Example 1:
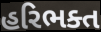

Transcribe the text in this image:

હરિભક્ત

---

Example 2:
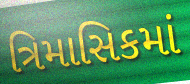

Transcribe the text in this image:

ત્રિમાસિકમાં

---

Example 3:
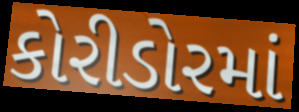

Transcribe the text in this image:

કોરીડોરમાં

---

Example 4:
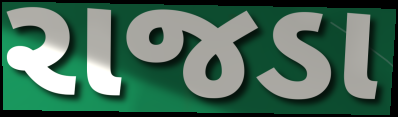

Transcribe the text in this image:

રાજડા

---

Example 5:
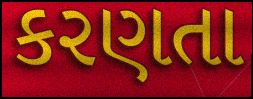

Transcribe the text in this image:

કરણતા